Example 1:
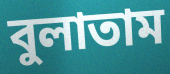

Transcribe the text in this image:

বুলাতাম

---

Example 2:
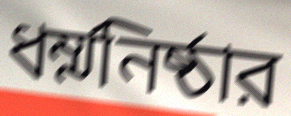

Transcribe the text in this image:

ধর্ম্মনিষ্ঠার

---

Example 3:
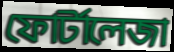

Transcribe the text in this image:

ফোর্টালেজা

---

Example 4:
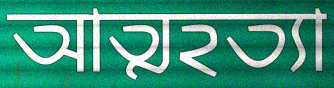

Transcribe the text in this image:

আত্মহত্যা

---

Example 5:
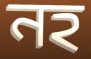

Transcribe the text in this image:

নহ